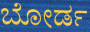
ಬೋರ್ಡ